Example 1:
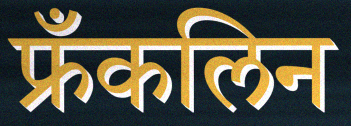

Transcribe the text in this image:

फ्रँकलिन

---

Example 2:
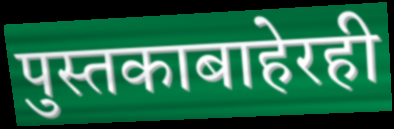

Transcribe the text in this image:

पुस्तकाबाहेरही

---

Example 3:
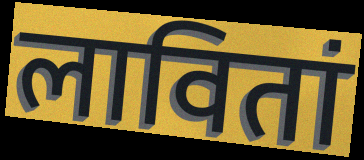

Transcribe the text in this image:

लावितां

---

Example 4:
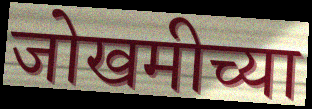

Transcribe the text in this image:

जोखमीच्या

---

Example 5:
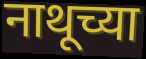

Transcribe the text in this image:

नाथूच्या